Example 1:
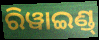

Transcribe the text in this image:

ରିୱାଇଣ୍ଡ୍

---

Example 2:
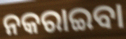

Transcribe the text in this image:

ନକରାଇବା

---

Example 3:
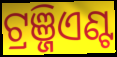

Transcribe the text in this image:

ଟ୍ରଞ୍ଜିଏଣ୍ଟ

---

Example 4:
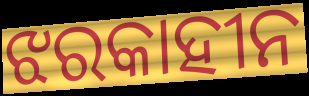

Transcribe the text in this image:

ଝରକାହୀନ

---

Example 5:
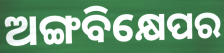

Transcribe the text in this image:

ଅଙ୍ଗବିକ୍ଷେପର